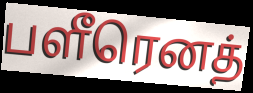
பளீரெனத்